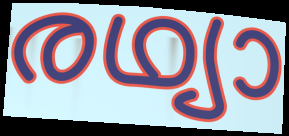
രഥ്യാ